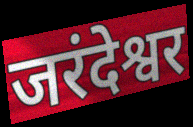
जरंदेश्वर